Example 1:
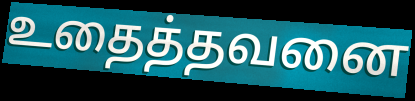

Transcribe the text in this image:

உதைத்தவனை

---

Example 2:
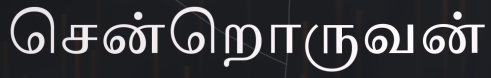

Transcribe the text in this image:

சென்றொருவன்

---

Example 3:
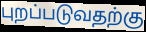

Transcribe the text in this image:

புறப்படுவதற்கு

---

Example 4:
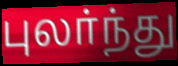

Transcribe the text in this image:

புலர்ந்து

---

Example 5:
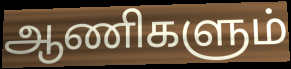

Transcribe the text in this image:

ஆணிகளும்